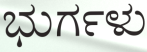
ಭುರ್ಗಳು